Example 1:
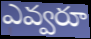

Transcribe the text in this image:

ఎవ్వరూ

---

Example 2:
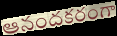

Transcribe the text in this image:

ఆనందకరంగా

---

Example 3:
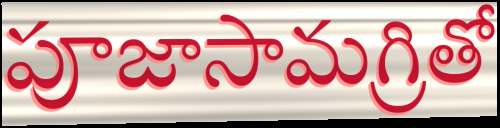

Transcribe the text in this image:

పూజాసామగ్రితో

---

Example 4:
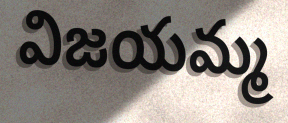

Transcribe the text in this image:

విజయమ్మ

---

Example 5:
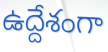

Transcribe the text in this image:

ఉద్దేశంగా